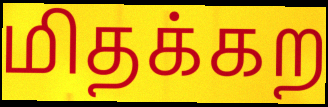
மிதக்கற